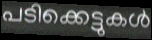
പടിക്കെട്ടുകൾ